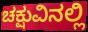
ಚಕ್ಷುವಿನಲ್ಲಿ